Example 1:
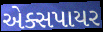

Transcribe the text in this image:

એક્સપાયર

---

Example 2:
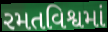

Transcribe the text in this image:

રમતવિશ્વમાં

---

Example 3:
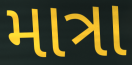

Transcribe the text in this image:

માત્રા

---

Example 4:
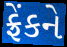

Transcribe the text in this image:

ફ્રેંકને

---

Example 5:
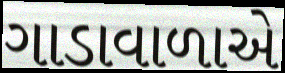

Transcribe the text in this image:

ગાડાવાળાએ